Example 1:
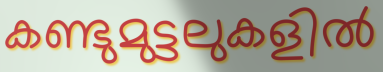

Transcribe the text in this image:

കണ്ടുമുട്ടലുകളിൽ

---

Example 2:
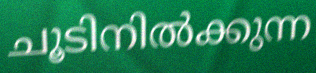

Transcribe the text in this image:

ചൂടിനിൽക്കുന്ന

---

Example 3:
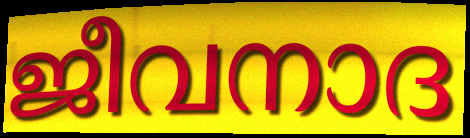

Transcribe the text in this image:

ജീവനാദ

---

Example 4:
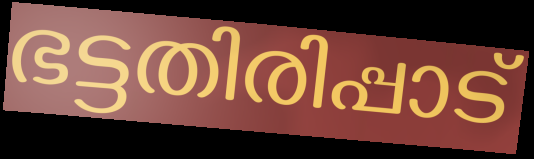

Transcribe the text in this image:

ഭട്ടതിരിപ്പാട്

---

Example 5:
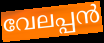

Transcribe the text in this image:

വേലപ്പൻ